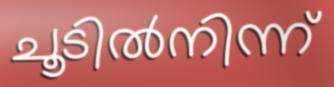
ചൂടിൽനിന്ന്